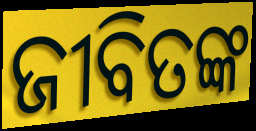
ଜୀବିତଙ୍କ